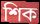
শিক